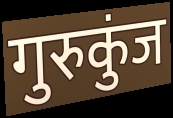
गुरुकुंज